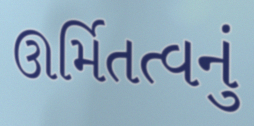
ઊર્મિતત્વનું